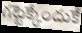
గట్టెక్కేందుకే